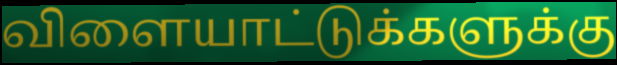
விளையாட்டுக்களுக்கு